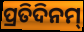
ପ୍ରତିଦିନମ୍